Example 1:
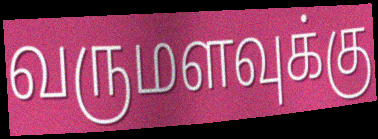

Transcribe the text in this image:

வருமளவுக்கு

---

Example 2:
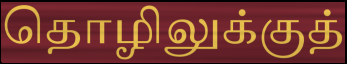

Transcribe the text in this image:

தொழிலுக்குத்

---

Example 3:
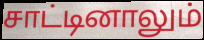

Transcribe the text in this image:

சாட்டினாலும்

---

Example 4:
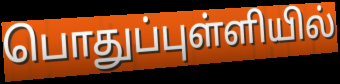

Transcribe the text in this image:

பொதுப்புள்ளியில்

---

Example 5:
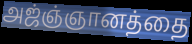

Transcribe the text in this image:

அஜ்ஞ்ஞானத்தை